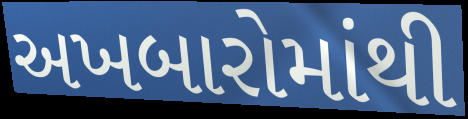
અખબારોમાંથી